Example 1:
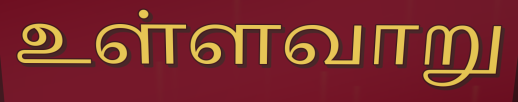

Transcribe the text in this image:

உள்ளவாறு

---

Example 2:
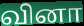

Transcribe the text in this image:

வினா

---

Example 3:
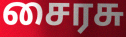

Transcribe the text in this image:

சைரசு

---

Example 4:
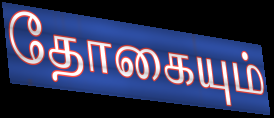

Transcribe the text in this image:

தோகையும்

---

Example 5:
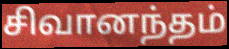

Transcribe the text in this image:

சிவானந்தம்